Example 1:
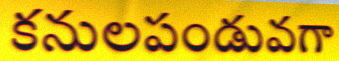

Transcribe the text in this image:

కనులపండువగా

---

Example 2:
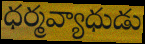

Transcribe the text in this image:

ధర్మవ్యాధుడు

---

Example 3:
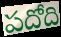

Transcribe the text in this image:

పదోది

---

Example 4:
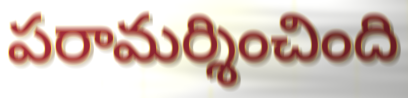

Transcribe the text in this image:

పరామర్శించింది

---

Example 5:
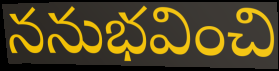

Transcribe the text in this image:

ననుభవించి